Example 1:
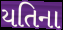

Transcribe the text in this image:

યતિના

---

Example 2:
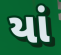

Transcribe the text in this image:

યાં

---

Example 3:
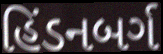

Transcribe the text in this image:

હિંડનબર્ગ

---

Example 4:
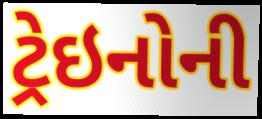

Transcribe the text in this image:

ટ્રેઇનોની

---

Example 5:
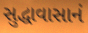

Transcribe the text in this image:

સુદ્ધાવાસાનં